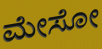
ಮೇಸೋ